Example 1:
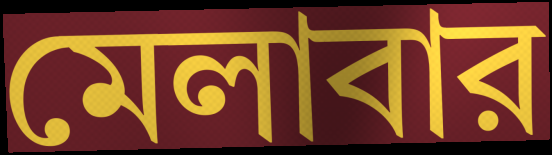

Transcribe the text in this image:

মেলাবার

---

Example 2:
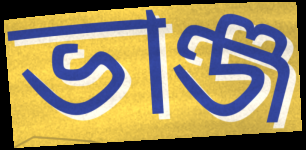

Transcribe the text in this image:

ভাঞ্জ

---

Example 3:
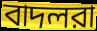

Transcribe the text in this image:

বাদলরা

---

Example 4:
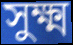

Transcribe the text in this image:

সুক্ষ্ম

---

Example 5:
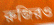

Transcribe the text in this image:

রুজিরও